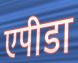
एपीडा